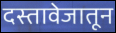
दस्तावेजातून